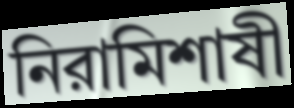
নিরামিশাষী